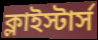
ক্লাইস্টার্স